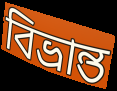
বিভ্রান্ত